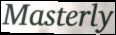
Masterly